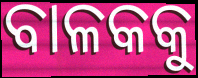
ବାଳକକୁ